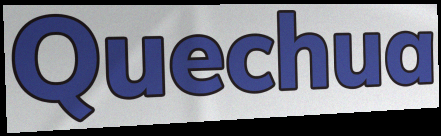
Quechua